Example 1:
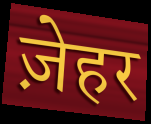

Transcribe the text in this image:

ज़ेहर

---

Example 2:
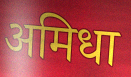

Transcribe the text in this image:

अमिधा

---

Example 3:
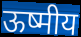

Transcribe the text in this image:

ऊष्मीय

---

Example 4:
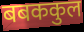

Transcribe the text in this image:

बबककुल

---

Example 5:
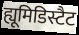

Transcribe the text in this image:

ह्यूमिडिस्टैट